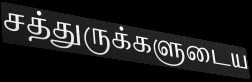
சத்துருக்களுடைய